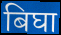
बिघा